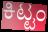
ಕಿಟ್ಟಂ